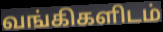
வங்கிகளிடம்